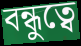
বন্ধুত্বে